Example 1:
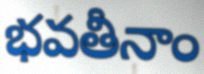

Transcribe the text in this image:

భవతీనాం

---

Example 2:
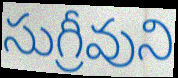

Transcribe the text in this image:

సుగ్రీవుని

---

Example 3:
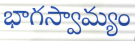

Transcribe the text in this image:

భాగస్వామ్యం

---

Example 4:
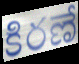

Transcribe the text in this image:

కిరణే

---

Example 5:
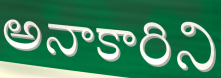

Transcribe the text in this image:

అనాకారిని